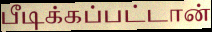
பீடிக்கப்பட்டான்